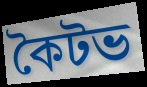
কৈটভ